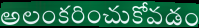
అలంకరించుకోవడం